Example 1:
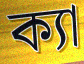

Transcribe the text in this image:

ক্যা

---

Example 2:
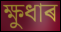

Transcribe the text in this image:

ক্ষুধাৰ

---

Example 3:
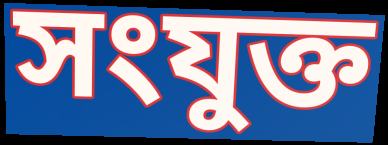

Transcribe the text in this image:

সংযুক্ত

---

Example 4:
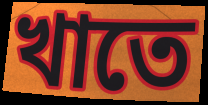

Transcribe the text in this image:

খাতে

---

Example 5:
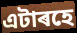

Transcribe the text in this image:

এটাৰহে